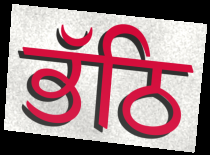
ਭੱਠਿ